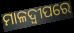
ମାଳଦ୍ବୀପରେ